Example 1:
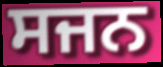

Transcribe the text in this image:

ਸਜਨ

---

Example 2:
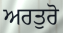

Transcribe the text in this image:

ਅਰਤੁਰੋ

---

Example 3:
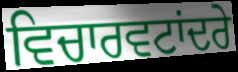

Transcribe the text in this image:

ਵਿਚਾਰਵਟਾਂਦਰੇ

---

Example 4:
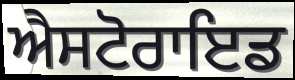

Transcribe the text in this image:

ਐਸਟੋਰਾਇਡ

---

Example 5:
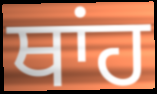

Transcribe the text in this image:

ਥਾਂਹ